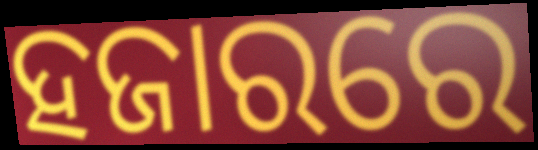
ହଜାରରେ